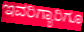
ಇವರಿಗ್ಯಾರಿಗೂ